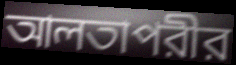
আলতাপরীর